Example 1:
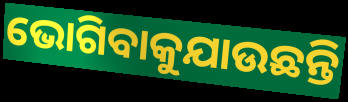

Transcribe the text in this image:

ଭୋଗିବାକୁଯାଉଛନ୍ତି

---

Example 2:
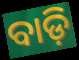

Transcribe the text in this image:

ବାଡ଼ି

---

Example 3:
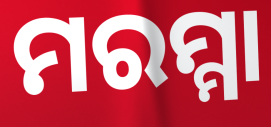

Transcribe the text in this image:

ମରମ୍ମା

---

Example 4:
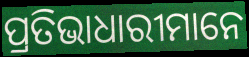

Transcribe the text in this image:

ପ୍ରତିଭାଧାରୀମାନେ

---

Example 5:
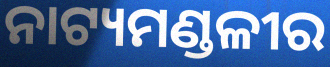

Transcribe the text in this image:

ନାଟ୍ୟମଣ୍ଡଳୀର